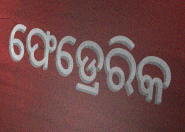
ଫେଡ୍ରେରିକ